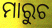
ମାରୁଚ